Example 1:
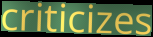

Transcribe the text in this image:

criticizes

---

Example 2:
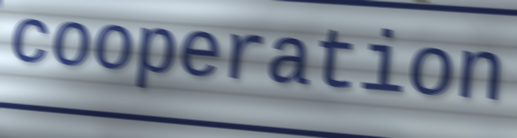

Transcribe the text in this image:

cooperation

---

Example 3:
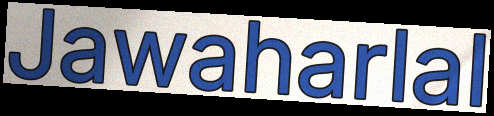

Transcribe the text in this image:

Jawaharlal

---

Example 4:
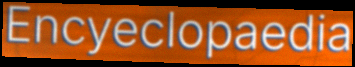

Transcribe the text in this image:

Encyeclopaedia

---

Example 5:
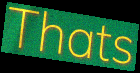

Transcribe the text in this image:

Thats